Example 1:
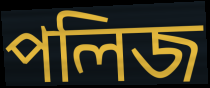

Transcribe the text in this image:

পলিজ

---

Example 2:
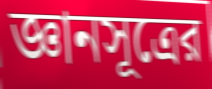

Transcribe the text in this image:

জ্ঞানসূত্রের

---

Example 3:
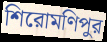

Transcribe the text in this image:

শিরোমণিপুর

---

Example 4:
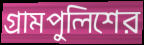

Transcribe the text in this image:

গ্রামপুলিশের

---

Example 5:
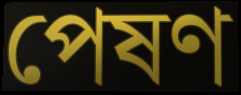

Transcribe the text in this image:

পেষণ